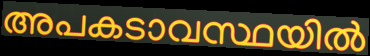
അപകടാവസ്ഥയിൽ